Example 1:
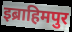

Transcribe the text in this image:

इब्राहिमपुर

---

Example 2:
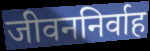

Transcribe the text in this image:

जीवननिर्वाह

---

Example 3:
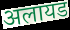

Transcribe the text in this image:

अलायड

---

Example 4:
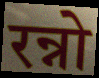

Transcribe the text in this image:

रन्नो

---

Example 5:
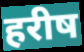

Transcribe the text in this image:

हरीष